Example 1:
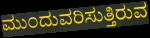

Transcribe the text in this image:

ಮುಂದುವರಿಸುತ್ತಿರುವ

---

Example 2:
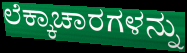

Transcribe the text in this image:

ಲೆಕ್ಕಾಚಾರಗಳನ್ನು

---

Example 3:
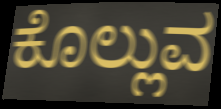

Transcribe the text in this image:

ಕೊಲ್ಲುವ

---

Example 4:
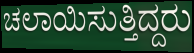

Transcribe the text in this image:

ಚಲಾಯಿಸುತ್ತಿದ್ದರು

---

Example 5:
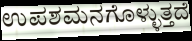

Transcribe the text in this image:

ಉಪಶಮನಗೊಳ್ಳುತ್ತದೆ